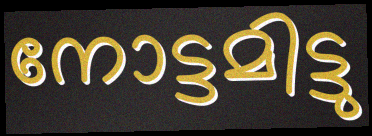
നോട്ടമിട്ടു